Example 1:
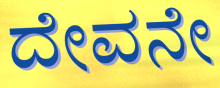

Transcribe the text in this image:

ದೇವನೇ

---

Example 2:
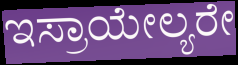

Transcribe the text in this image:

ಇಸ್ರಾಯೇಲ್ಯರೇ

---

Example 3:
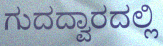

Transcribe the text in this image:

ಗುದದ್ವಾರದಲ್ಲಿ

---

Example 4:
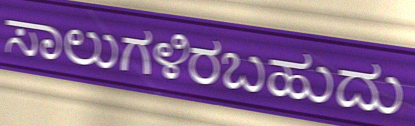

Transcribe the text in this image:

ಸಾಲುಗಳಿರಬಹುದು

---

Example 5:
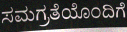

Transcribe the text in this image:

ಸಮಗ್ರತೆಯೊಂದಿಗೆ